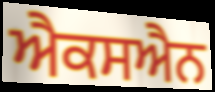
ਐਕਸਐਨ